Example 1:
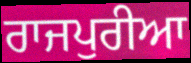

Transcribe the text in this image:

ਰਾਜਪੁਰੀਆ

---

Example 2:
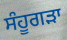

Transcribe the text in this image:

ਸੰਹੂਗੜਾ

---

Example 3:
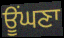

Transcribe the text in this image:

ਊਂਘਣਾ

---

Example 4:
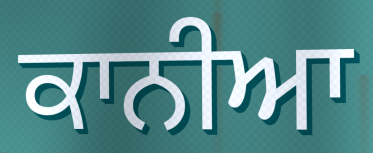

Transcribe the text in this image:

ਕਾਨੀਆ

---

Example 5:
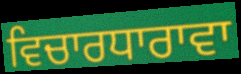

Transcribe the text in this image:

ਵਿਚਾਰਧਾਰਾਵਾ